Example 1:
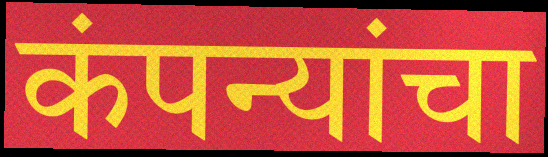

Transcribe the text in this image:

कंपन्यांचा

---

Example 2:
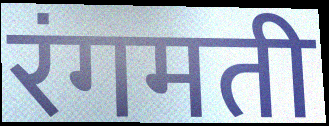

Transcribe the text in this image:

रंगमती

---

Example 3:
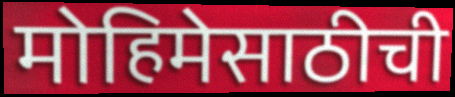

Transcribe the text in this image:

मोहिमेसाठीची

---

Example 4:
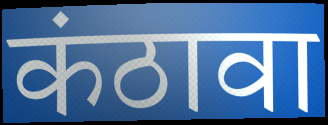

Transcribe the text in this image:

कंठावा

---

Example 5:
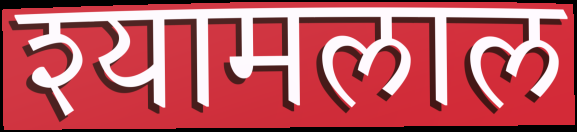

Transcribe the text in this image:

श्यामलाल